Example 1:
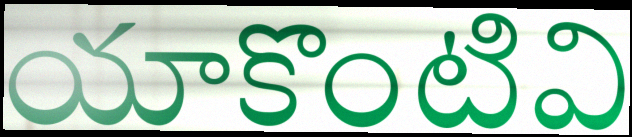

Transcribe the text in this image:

యాకొంటివి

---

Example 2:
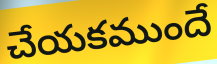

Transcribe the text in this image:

చేయకముందే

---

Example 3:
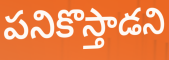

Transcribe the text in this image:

పనికొస్తాడని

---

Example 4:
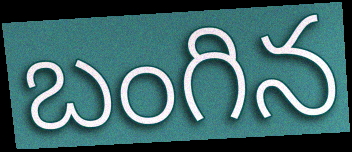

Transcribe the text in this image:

బంగిన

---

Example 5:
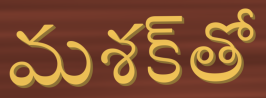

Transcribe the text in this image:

మశక్‌తో